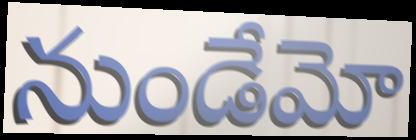
నుండేమో